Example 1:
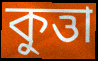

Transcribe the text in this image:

কুত্তা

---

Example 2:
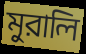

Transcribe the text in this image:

মুরালি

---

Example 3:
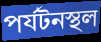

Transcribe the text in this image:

পর্যটনস্থল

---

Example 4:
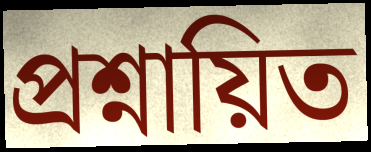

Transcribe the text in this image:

প্রশ্নায়িত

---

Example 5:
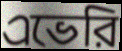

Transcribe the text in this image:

এভেরি